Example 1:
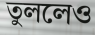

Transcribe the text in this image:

তুললেও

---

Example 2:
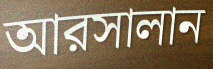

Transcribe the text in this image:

আরসালান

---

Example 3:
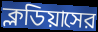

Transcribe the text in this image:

ক্লডিয়াসের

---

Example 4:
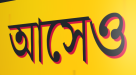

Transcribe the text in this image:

আসেও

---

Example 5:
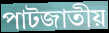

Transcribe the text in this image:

পাটজাতীয়